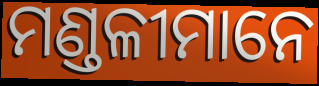
ମଣ୍ଡଳୀମାନେ